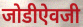
जोडीऐवजी